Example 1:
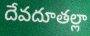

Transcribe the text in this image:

దేవదూతల్లా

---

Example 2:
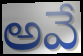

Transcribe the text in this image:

అవే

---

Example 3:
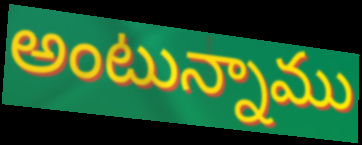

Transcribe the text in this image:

అంటున్నాము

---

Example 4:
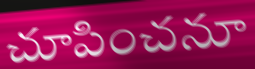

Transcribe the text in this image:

చూపించనూ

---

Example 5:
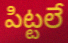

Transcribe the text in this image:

పిట్టలే